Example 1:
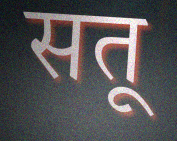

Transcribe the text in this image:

सतू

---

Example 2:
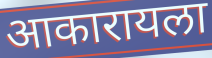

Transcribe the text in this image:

आकारायला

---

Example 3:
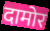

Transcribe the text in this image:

दामोर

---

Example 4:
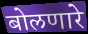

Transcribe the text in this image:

बोलणारे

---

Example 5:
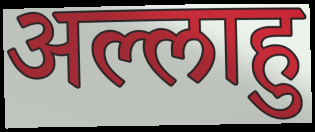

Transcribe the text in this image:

अल्लाहु